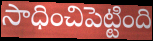
సాధించిపెట్టింది